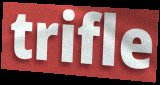
trifle